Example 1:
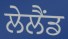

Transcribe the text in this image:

ਲੇਲੈਂਡ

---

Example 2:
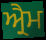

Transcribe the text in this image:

ਐ੍ਰਮ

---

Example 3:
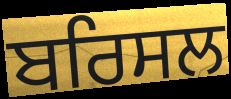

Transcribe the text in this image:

ਬਰਿਸਲ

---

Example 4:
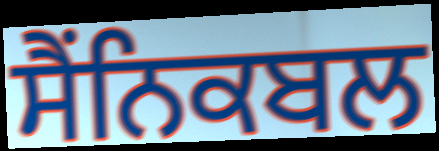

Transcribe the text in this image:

ਸੈੰਨਿਕਬਲ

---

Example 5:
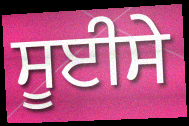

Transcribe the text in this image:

ਸੂਈਸੇ